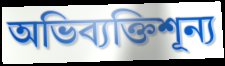
অভিব্যক্তিশূন্য